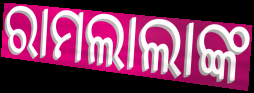
ରାମଲାଲାଙ୍କ